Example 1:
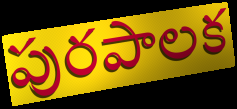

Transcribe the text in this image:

పురపాలక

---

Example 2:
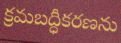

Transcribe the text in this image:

క్రమబద్ధీకరణను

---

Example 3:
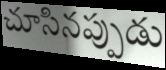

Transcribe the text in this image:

చూసినప్పుడు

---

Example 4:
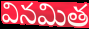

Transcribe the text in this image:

వినమిత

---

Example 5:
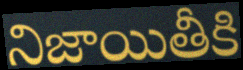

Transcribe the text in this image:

నిజాయితీకి